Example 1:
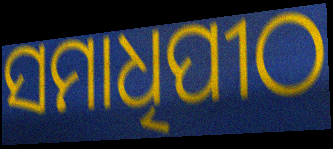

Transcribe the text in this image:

ସମାଧିପୀଠ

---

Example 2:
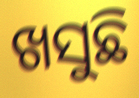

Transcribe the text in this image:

ଖସୁଛି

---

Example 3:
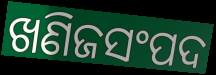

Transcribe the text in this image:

ଖଣିଜସଂପଦ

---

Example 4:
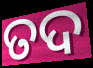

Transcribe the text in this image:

ତଦ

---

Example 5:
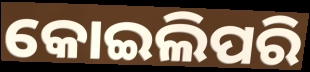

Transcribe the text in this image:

କୋଇଲିପରି